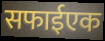
सफाईएक